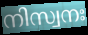
നിസ്വനഃ